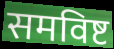
समविष्ट